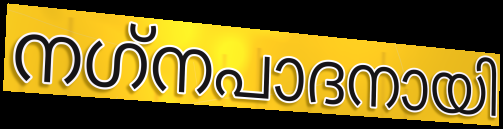
നഗ്‌നപാദനായി